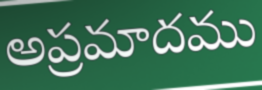
అప్రమాదము